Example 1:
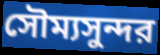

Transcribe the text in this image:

সৌম্যসুন্দর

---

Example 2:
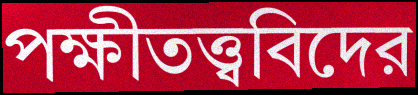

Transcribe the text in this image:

পক্ষীতত্ত্ববিদের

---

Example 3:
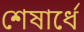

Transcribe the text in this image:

শেষার্ধে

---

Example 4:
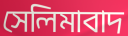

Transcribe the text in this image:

সেলিমাবাদ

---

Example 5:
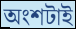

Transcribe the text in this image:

অংশটাই